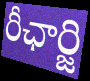
రీఛార్జి